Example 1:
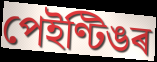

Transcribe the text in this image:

পেইণ্টিঙৰ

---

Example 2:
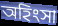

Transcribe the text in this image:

অহিংসা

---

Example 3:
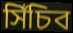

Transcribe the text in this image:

সিঁচিব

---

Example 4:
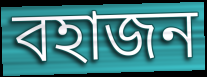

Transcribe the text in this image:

বহাজন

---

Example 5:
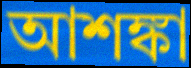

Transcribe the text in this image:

আশঙ্কা